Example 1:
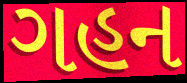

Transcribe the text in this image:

ગહન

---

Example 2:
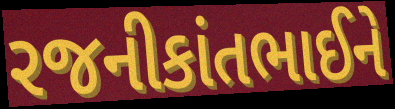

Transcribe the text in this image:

રજનીકાંતભાઈને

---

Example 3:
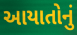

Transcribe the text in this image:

આયાતોનું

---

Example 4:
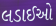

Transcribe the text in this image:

લડાઈઓ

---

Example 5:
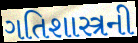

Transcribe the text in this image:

ગતિશાસ્ત્રની